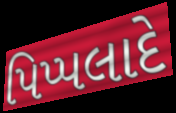
પિપ્પલાદે